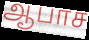
ஆபாச